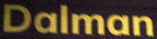
Dalman